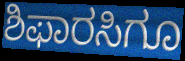
ಶಿಫಾರಸಿಗೂ